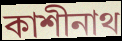
কাশীনাথ